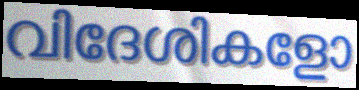
വിദേശികളോ